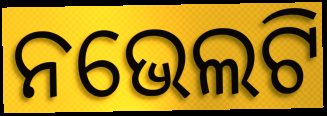
ନଭେଲଟି